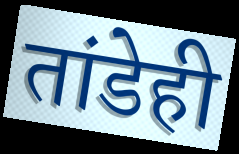
तांडेही